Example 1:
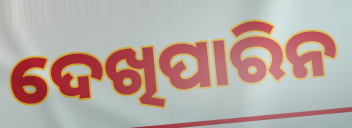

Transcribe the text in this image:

ଦେଖିପାରିନ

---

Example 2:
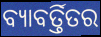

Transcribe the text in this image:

ବ୍ୟାବର୍ତ୍ତିତର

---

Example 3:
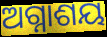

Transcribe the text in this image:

ଅଗ୍ନାଶୟ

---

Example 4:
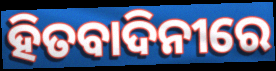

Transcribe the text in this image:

ହିତବାଦିନୀରେ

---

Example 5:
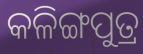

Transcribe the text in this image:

କଳିଙ୍ଗପୁତ୍ର